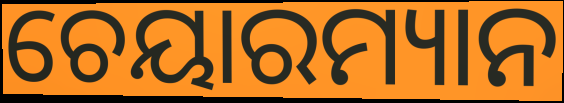
ଚେୟାରମ୍ୟାନ